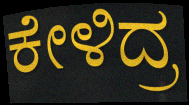
ಕೇಳಿದ್ರ